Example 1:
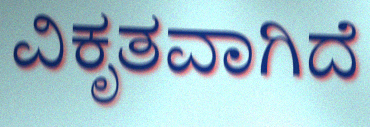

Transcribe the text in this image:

ವಿಕೃತವಾಗಿದೆ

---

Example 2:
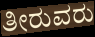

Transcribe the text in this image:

ತೀರುವರು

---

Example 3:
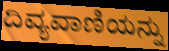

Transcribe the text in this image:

ದಿವ್ಯವಾಣಿಯನ್ನು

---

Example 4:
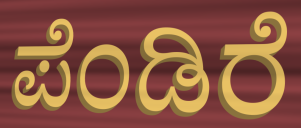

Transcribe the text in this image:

ಪೆಂಡಿರೆ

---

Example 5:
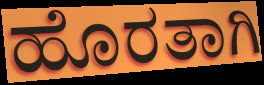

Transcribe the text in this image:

ಹೊರತಾಗಿ